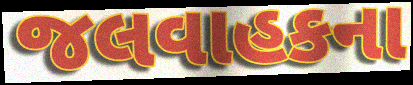
જલવાહકના